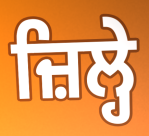
ਜ਼ਿਲ੍ਹੇ